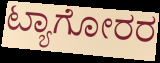
ಟ್ಯಾಗೋರರ